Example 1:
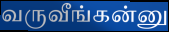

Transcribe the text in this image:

வருவீங்கன்னு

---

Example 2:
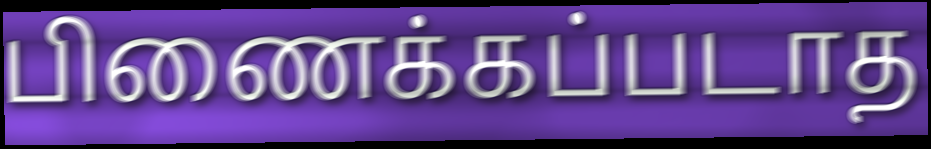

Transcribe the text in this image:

பிணைக்கப்படாத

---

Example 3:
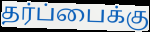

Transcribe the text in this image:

தர்ப்பைக்கு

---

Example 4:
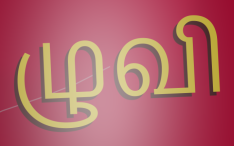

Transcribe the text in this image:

ழுவி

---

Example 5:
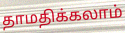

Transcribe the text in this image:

தாமதிக்கலாம்